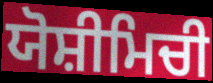
ਯੋਸ਼ੀਮਿਚੀ